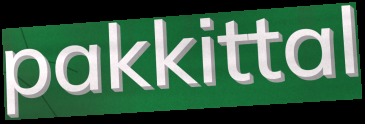
pakkittal